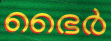
ഭൈർ